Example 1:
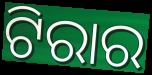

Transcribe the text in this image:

ଟିରାର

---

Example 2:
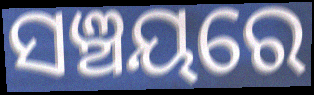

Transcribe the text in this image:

ସଞ୍ଚୟରେ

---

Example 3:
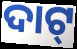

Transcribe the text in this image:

ଦାଟ୍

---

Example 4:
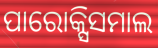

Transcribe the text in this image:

ପାରୋକ୍ସିସମାଲ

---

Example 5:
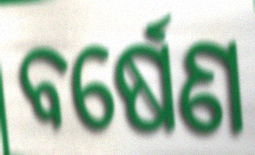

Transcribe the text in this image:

ବର୍ଷେଣ